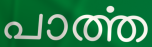
പാൎത്ത